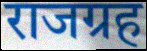
राजग्रह